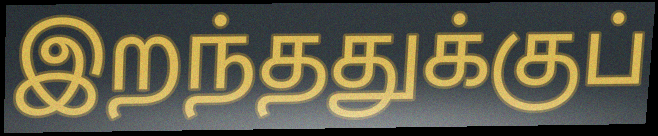
இறந்ததுக்குப்